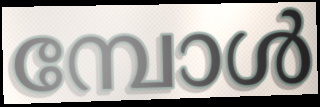
മ്പോൾ